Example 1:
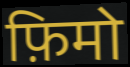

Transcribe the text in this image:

फ़िमो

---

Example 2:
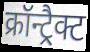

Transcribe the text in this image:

क्रॉन्ट्रैक्ट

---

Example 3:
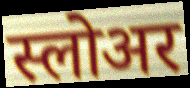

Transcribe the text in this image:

स्लोअर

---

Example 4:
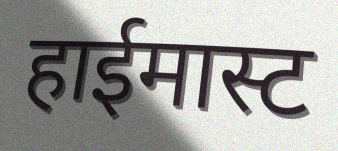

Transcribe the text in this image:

हाईमास्ट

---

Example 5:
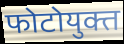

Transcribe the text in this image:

फोटोयुक्त